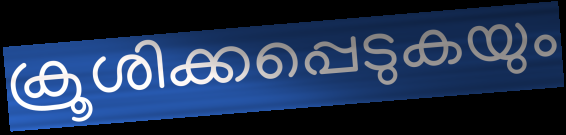
ക്രൂശിക്കപ്പെടുകയും